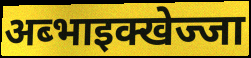
अब्भाइक्खेज्जा